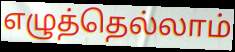
எழுத்தெல்லாம்